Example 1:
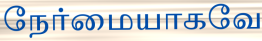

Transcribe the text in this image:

நேர்மையாகவே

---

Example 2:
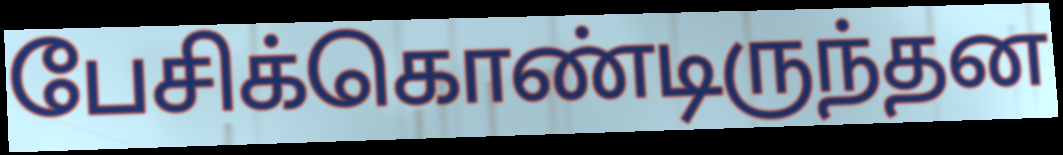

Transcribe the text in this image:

பேசிக்கொண்டிருந்தன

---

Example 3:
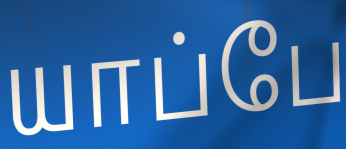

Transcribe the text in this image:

யாப்பே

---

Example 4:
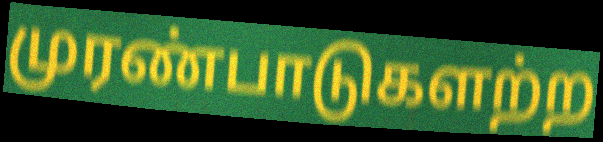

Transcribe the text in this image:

முரண்பாடுகளற்ற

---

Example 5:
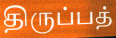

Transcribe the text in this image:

திருப்பத்